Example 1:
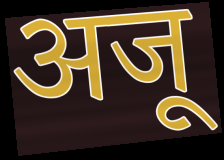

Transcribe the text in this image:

अजू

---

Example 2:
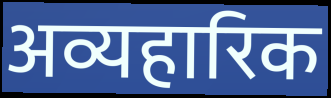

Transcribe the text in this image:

अव्यहारिक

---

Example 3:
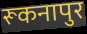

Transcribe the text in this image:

रूकनापुर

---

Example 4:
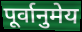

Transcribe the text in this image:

पूर्वानुमेय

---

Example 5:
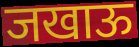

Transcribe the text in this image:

जखाऊ